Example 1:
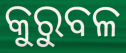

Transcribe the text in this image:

କୁରୁବଳ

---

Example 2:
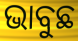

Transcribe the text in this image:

ଭାବୁଛ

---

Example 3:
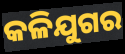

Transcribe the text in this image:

କଳିଯୁଗର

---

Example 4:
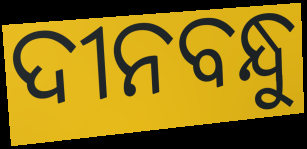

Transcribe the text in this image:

ଦୀନବନ୍ଧୁ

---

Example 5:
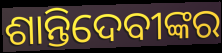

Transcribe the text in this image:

ଶାନ୍ତିଦେବୀଙ୍କର